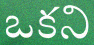
ఒకని